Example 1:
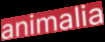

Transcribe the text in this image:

animalia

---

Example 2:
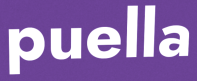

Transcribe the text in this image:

puella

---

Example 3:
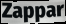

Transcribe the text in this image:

Zappar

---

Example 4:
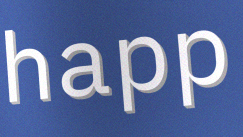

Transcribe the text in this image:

happ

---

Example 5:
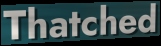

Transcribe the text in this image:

Thatched